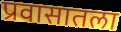
प्रवासातला